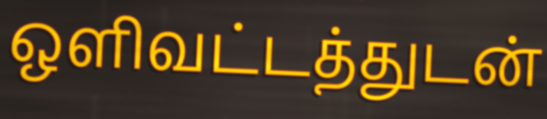
ஒளிவட்டத்துடன்